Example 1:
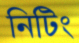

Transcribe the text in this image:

নিটিং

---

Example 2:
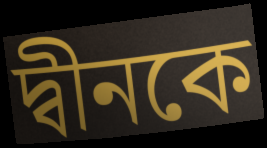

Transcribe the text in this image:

দ্বীনকে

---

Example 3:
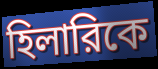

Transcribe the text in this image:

হিলারিকে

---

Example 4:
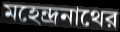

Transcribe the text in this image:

মহেন্দ্রনাথের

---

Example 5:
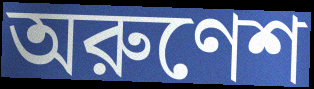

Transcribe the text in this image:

অরুণেশ